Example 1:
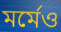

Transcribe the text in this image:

মর্মেও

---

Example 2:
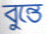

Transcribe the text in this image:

বুন্তে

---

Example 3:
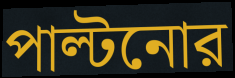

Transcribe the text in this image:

পাল্টনোর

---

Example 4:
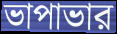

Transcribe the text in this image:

ভাপাভার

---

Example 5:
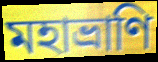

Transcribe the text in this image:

মহাভ্রাণি